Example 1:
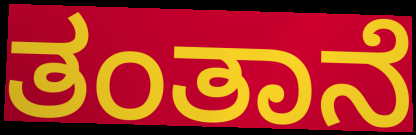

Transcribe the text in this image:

ತಂತಾನೆ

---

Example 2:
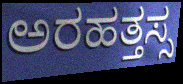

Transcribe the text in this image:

ಅರಹತ್ತಸ್ಸ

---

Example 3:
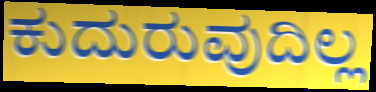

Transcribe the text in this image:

ಕುದುರುವುದಿಲ್ಲ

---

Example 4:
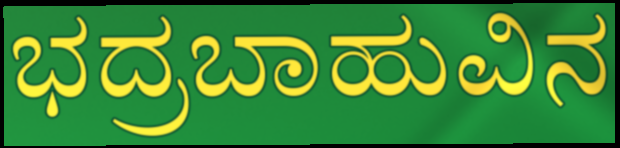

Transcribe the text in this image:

ಭದ್ರಬಾಹುವಿನ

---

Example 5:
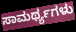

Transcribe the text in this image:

ಸಾಮರ್ಥ್ಯಗಳು